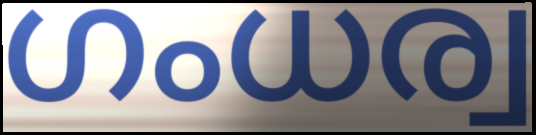
ഗംധര്വ